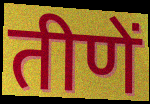
तीणें